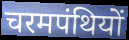
चरमपंथियों